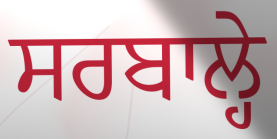
ਸਰਬਾਲ੍ਹੇ